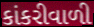
કાંકરીવાળી